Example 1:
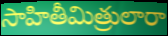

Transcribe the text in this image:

సాహితీమిత్రులారా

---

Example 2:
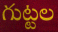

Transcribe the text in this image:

గుట్టల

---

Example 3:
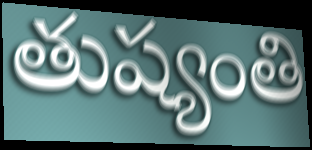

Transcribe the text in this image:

తుష్యంతి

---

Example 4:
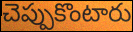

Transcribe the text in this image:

చెప్పుకొంటారు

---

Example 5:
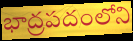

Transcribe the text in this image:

భాద్రపదంలోని